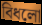
বিধলো